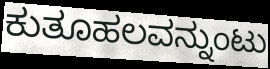
ಕುತೂಹಲವನ್ನುಂಟು